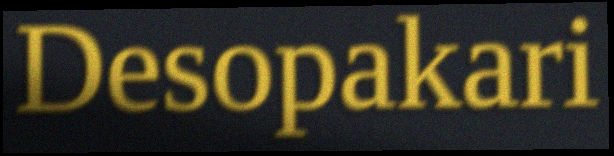
Desopakari